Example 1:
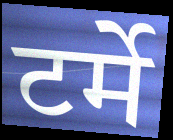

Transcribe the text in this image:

टर्मे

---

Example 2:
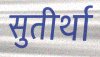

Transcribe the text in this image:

सुतीर्था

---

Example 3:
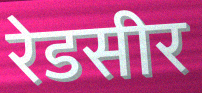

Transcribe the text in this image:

रेडसीर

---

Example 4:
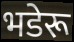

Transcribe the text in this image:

भडेरू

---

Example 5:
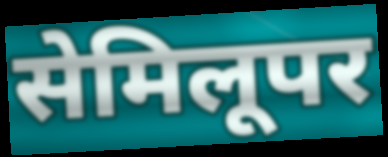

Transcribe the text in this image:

सेमिलूपर